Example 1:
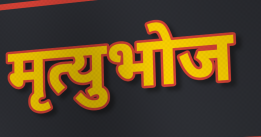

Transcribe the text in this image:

मृत्युभोज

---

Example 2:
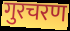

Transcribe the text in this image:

गुरचरण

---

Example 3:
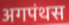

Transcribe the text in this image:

अगपंथस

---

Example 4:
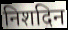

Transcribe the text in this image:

निशदिन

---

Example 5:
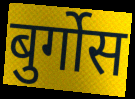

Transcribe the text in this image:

बुर्गोस